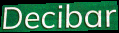
Decibar